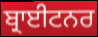
ਬ੍ਰਾਈਟਨਰ